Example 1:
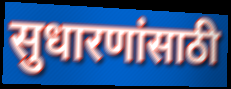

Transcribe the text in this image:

सुधारणांसाठी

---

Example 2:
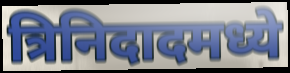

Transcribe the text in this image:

त्रिनिदादमध्ये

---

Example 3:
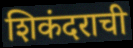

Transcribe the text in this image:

शिकंदराची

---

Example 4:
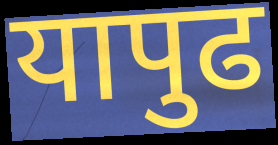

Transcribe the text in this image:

यापुढ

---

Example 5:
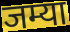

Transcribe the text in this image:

जम्या